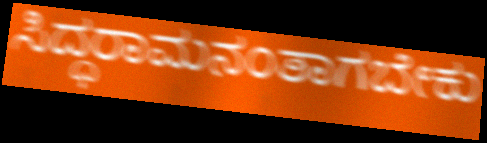
ಸಿದ್ಧರಾಮನಂತಾಗಬೇಕು